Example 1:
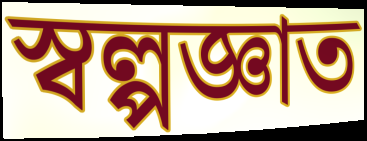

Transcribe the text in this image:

স্বল্পজ্ঞাত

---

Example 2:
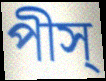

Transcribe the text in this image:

পীস্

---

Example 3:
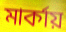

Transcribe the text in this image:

মার্কায়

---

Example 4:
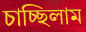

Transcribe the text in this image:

চাচ্ছিলাম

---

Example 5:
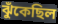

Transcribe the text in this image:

ঝুঁকেছিল